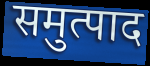
समुत्पाद